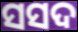
ସସଦ